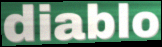
diablo